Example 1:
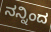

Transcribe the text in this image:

ನನ್ನಿಂದ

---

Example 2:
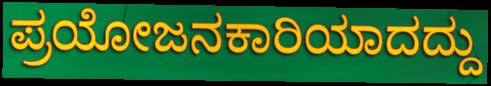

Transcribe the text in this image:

ಪ್ರಯೋಜನಕಾರಿಯಾದದ್ದು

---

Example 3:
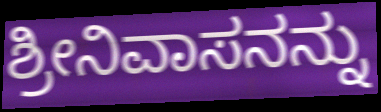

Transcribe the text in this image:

ಶ್ರೀನಿವಾಸನನ್ನು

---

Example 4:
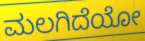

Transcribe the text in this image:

ಮಲಗಿದೆಯೋ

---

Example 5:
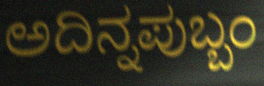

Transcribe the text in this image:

ಅದಿನ್ನಪುಬ್ಬಂ